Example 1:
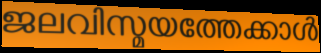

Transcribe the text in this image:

ജലവിസ്മയത്തേക്കാൾ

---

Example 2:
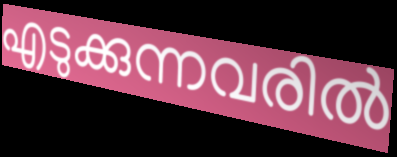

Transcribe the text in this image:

എടുക്കുന്നവരിൽ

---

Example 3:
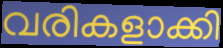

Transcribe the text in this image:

വരികളാക്കി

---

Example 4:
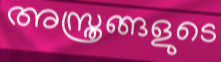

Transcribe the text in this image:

അസ്ത്രങ്ങളുടെ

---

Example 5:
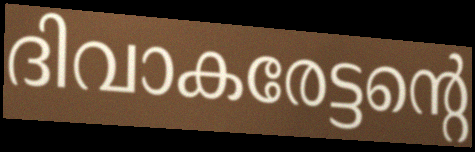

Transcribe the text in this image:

ദിവാകരേട്ടന്റെ